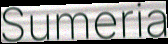
Sumeria